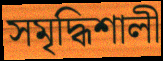
সমৃদ্ধিশালী